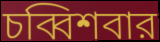
চব্বিশবার